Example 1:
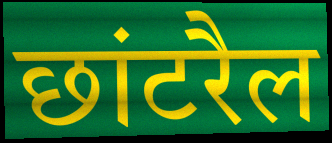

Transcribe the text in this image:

छांटरैल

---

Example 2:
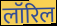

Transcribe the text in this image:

लॉरिल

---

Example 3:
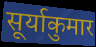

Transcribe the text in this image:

सूर्याकुमार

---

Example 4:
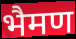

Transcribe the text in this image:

भैमण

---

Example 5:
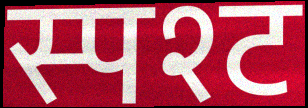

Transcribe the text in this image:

स्पश्ट